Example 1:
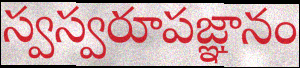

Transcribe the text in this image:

స్వస్వరూపజ్ఞానం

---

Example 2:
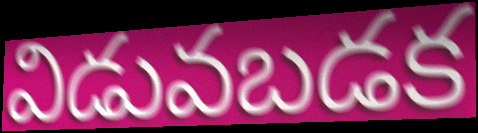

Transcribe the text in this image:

విడువబడక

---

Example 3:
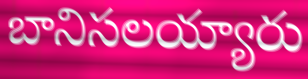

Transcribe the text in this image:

బానిసలయ్యారు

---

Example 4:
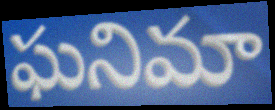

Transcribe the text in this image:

ఘనిమా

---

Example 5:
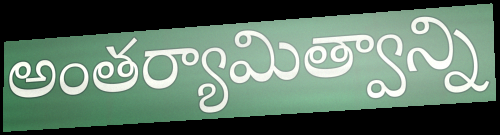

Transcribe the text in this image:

అంతర్యామిత్వాన్ని